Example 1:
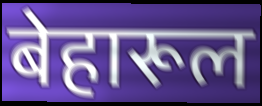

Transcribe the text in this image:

बेहारूल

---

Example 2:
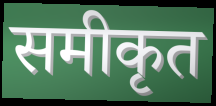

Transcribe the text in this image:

समीकृत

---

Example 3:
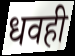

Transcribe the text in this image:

धवही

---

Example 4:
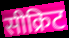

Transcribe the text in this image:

सीक्रिट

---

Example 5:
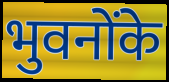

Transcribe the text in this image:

भुवनोंके